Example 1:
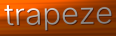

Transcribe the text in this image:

trapeze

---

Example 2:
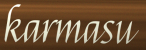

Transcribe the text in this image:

karmasu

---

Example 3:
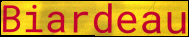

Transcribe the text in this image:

Biardeau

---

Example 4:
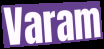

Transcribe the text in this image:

Varam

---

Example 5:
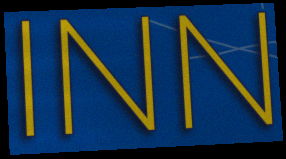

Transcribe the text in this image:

INN